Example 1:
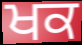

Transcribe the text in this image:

ਖਕ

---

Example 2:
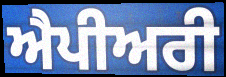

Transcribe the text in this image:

ਐਪੀਅਰੀ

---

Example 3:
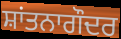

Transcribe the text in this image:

ਸ਼ਾਂਤਨਾਗੌਦਰ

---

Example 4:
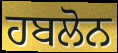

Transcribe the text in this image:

ਹਬਲੋਨ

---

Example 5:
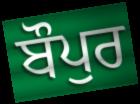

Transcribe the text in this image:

ਬੌਪੁਰ